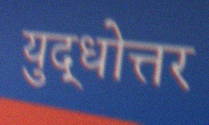
युद्धोत्तर